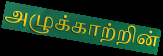
அழுக்காற்றின்